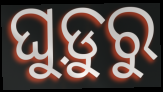
ଘୁଡ଼ୁରୁ